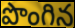
పొంగిన